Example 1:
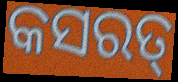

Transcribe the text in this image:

କସରତ୍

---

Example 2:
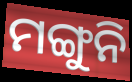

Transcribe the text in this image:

ମଙ୍ଗୁନି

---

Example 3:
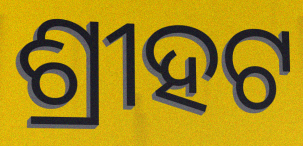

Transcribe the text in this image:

ଶ୍ରୀହଟ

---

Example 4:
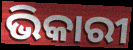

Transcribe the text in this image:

ଭିକାରୀ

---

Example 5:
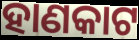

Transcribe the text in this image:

ହାଣକାଟ